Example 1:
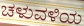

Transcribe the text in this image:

ಚಳುವಳಿಯ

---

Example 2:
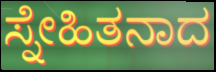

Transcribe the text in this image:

ಸ್ನೇಹಿತನಾದ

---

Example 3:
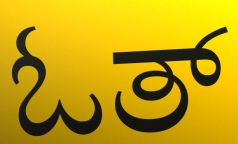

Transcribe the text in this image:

ಓತ್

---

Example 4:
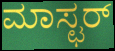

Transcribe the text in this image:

ಮಾಸ್ಟರ್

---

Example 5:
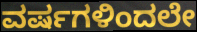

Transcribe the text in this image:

ವರ್ಷಗಳಿಂದಲೇ